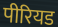
पीरियड